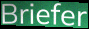
Briefer